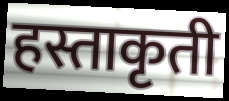
हस्ताकृती